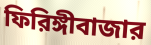
ফিরিঙ্গীবাজার